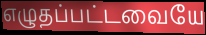
எழுதப்பட்டவையே